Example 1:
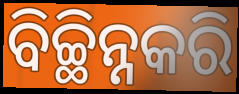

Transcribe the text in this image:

ବିଚ୍ଛିନ୍ନକରି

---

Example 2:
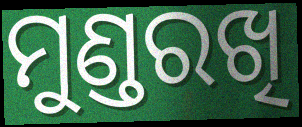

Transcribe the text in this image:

ମୁଣ୍ଡରଖି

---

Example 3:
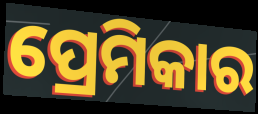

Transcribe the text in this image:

ପ୍ରେମିକାର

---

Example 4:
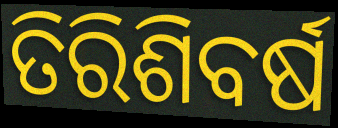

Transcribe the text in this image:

ତିରିଶିବର୍ଷ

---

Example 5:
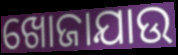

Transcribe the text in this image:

ଖୋଜାଯାଉ